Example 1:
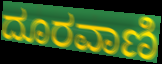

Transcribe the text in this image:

ದೂರವಾಣಿ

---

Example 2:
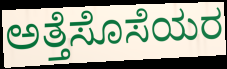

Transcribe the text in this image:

ಅತ್ತೆಸೊಸೆಯರ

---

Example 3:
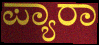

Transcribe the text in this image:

ಪ್ಯಾರಾ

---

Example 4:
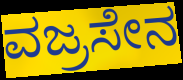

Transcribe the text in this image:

ವಜ್ರಸೇನ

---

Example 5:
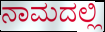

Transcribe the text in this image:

ನಾಮದಲ್ಲಿ